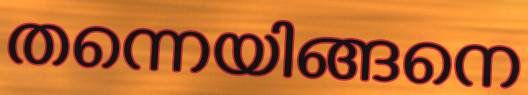
തന്നെയിങ്ങനെ